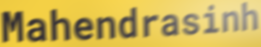
Mahendrasinh